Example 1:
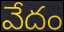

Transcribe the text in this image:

వేదం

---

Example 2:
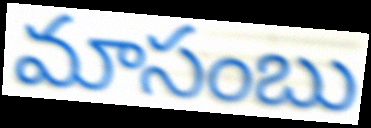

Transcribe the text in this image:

మాసంబు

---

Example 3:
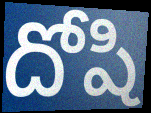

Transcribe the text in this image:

దోషి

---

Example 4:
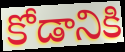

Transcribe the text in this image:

కోడానికి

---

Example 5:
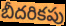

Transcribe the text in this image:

బీదరికపు